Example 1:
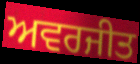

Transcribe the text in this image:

ਅਵਰਜੀਤ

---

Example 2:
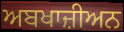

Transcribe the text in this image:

ਅਬਖਾਜ਼ੀਅਨ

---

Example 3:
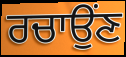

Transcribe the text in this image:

ਰਚਾਉਂਣ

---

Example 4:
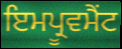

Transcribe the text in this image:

ਇਮਪ੍ਰੂਵਮੈਂਟ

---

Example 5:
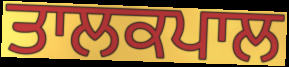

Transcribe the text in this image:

ਤਾਲਕਪਾਲ